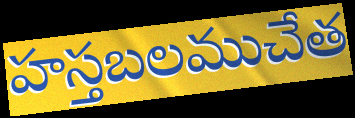
హస్తబలముచేత